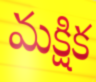
మక్షిక